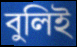
বুলিই